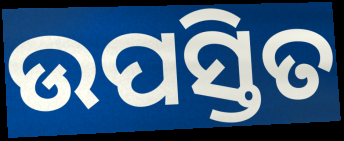
ଉପସ୍ତିତ